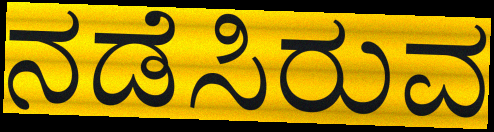
ನಡೆಸಿರುವ